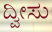
ದ್ವೀಸು